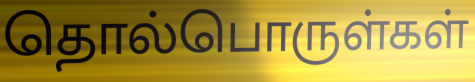
தொல்பொருள்கள்